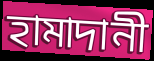
হামাদানী